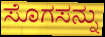
ಸೊಗಸನ್ನು